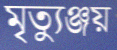
মৃত্যুঞ্জয়